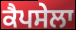
ਕੈਪਸੇਲਾ